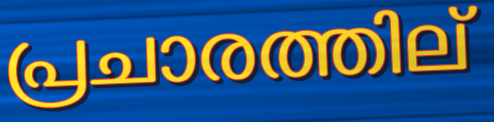
പ്രചാരത്തില്